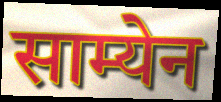
साम्येन